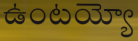
ఉంటయ్యో